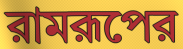
রামরূপের